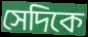
সেদিকে